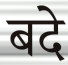
बदे